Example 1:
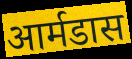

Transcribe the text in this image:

आर्मडास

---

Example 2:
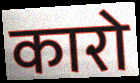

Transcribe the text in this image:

कारो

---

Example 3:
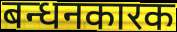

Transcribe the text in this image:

बन्धनकारक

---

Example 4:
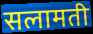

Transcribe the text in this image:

सलामती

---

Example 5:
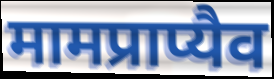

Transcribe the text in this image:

मामप्राप्यैव